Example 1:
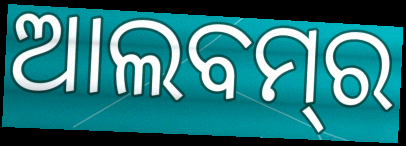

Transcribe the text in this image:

ଆଲବମ୍‌ର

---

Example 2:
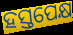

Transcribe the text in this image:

ହସ୍ତପେକ୍ଷ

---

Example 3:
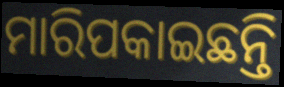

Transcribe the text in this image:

ମାରିପକାଇଛନ୍ତି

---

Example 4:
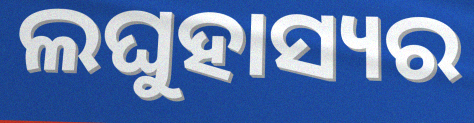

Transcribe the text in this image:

ଲଘୁହାସ୍ୟର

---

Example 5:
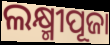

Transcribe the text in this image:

ଲକ୍ଷ୍ମୀପୂଜା